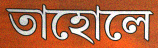
তাহোলে